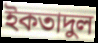
ইকতাদুল